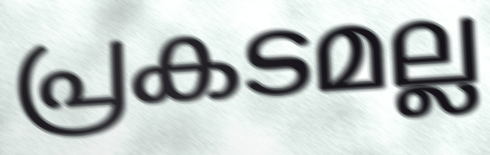
പ്രകടമല്ല